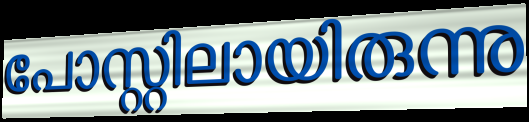
പോസ്റ്റിലായിരുന്നു